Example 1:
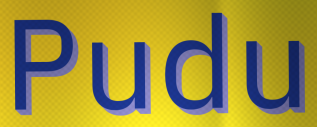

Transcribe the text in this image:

Pudu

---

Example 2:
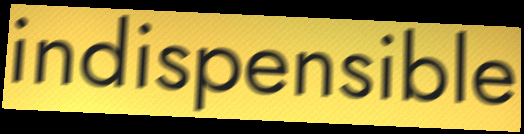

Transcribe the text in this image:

indispensible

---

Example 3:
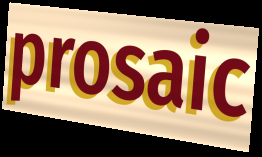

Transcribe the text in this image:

prosaic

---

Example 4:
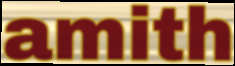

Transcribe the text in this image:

amith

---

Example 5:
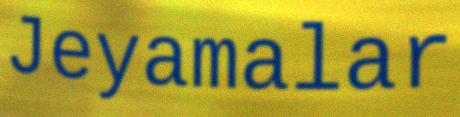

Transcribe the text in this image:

Jeyamalar